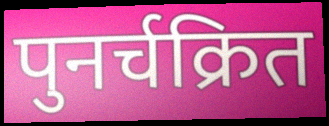
पुनर्चक्रित